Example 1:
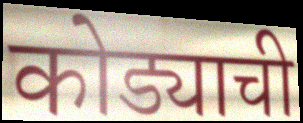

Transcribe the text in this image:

कोड्याची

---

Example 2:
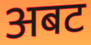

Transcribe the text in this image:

अबट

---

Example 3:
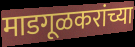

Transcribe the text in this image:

माडगूळकरांच्या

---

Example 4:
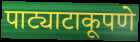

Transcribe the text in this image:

पाट्याटाकूपणे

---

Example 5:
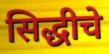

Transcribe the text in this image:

सिद्धीचे